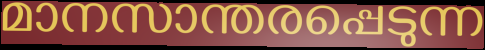
മാനസാന്തരപ്പെടുന്ന